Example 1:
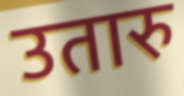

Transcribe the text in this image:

उतारु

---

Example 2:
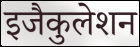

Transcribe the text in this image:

इजैकुलेशन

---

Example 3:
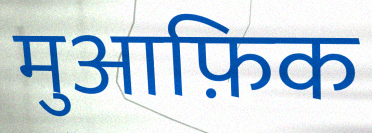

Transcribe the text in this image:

मुआफ़िक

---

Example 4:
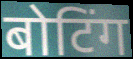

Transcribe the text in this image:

बोटिंग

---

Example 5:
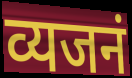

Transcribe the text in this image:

व्यजनं